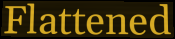
Flattened